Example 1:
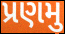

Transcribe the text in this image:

પ્રણમુ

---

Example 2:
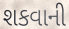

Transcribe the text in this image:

શકવાની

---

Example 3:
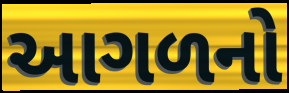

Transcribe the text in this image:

આગળનો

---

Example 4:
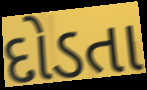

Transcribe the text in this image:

દોડતા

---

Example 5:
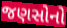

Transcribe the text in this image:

જણસોનો